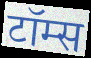
टॉम्स